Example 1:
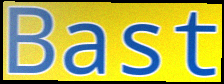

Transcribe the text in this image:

Bast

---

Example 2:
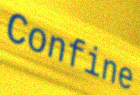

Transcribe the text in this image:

Confine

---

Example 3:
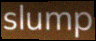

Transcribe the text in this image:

slump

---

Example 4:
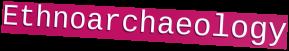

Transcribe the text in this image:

Ethnoarchaeology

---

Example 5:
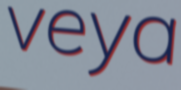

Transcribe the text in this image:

veya